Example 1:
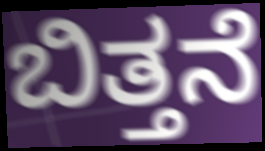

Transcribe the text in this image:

ಬಿತ್ತನೆ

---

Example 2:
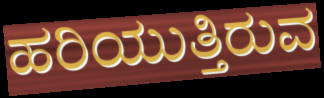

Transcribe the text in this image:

ಹರಿಯುತ್ತಿರುವ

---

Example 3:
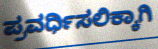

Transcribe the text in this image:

ಪ್ರವರ್ಧಿಸಲಿಕ್ಕಾಗಿ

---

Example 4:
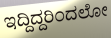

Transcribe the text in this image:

ಇದ್ದಿದ್ದರಿಂದಲೋ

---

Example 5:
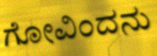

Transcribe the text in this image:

ಗೋವಿಂದನು